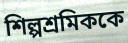
শিল্পশ্রমিককে